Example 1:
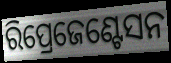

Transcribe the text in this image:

ରିପ୍ରେଜେଣ୍ଟେସନ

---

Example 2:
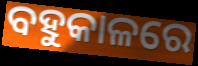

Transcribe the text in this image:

ବହୁକାଳରେ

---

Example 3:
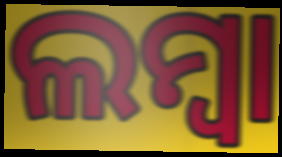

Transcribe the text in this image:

ଲମ୍ୱା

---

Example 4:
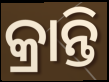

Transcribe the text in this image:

କ୍ରାନ୍ତି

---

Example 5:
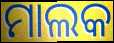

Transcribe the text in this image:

ମାଲକ